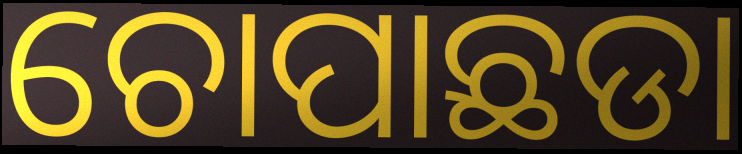
ଚୋପାଛଡା